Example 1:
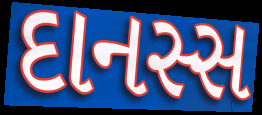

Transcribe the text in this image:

દાનસ્સ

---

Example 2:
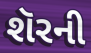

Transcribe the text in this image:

શૅરની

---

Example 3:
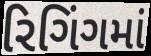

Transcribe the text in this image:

રિગિંગમાં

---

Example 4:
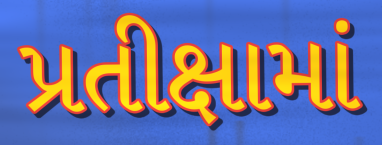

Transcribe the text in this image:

પ્રતીક્ષામાં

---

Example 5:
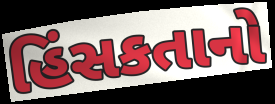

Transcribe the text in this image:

હિંસકતાનો